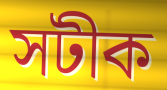
সটীক